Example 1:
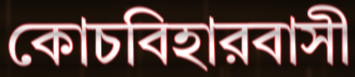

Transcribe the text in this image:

কোচবিহারবাসী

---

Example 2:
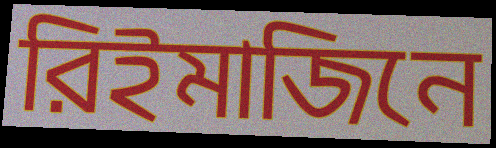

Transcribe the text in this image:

রিইমাজিনে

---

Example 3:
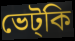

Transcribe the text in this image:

ভেট্কি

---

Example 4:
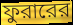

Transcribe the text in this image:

ফুরারের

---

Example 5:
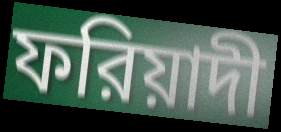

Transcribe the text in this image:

ফরিয়াদী